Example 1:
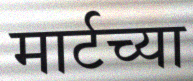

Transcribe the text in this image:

मार्टच्या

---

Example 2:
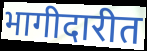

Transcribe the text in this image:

भागीदारीत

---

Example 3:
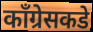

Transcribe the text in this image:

काँग्रेसकडे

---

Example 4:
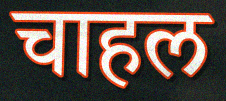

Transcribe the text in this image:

चाहल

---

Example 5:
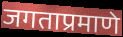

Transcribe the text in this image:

जगताप्रमाणे